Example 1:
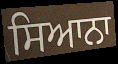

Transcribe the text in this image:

ਸਿਆਨਾ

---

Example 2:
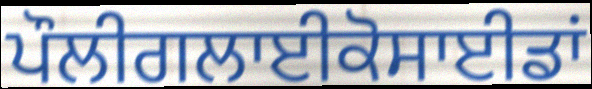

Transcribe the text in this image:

ਪੌਲੀਗਲਾਈਕੋਸਾਈਡਾਂ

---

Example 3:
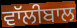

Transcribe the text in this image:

ਵਾੱਲੀਬਾਲ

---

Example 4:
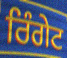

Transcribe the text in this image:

ਰਿੰਗੇਟ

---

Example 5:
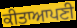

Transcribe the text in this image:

ਕੀਤਾਆਪਣੀ